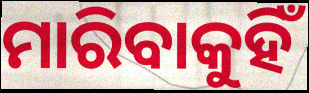
ମାରିବାକୁହିଁ